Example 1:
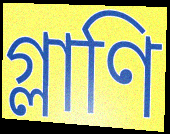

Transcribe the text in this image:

গ্লাণি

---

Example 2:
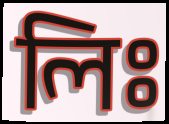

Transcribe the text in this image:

লিঃ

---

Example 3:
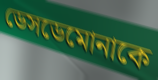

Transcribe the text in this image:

ডেসডেমোনাকে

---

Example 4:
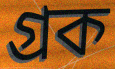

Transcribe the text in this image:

গ্রক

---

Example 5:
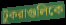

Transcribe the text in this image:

টুকরাগুলিকে